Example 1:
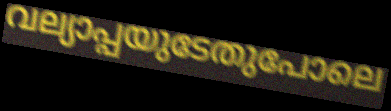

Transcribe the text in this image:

വല്യാപ്പയുടേതുപോലെ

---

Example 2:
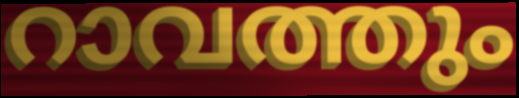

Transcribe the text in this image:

റാവത്തും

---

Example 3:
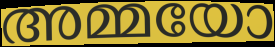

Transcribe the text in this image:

അമ്മയോ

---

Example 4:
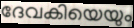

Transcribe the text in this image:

ദേവകിയെയും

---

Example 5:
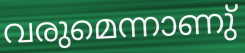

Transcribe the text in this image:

വരുമെന്നാണു്